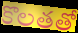
కొలతతో